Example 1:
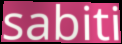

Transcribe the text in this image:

sabiti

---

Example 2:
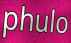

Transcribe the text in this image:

phulo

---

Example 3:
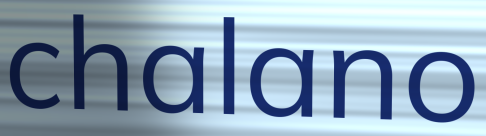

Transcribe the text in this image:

chalano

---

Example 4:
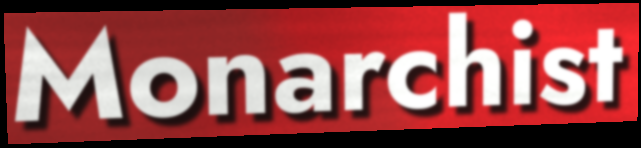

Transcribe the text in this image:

Monarchist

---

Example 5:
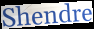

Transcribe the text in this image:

Shendre